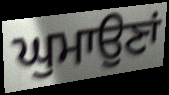
ਘੁਮਾਉਣਾਂ